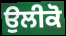
ਉਲੀਕੋ